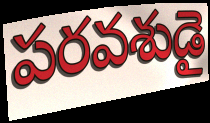
పరవశుడై